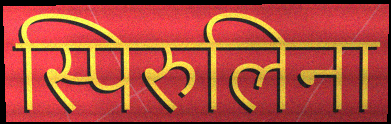
स्पिरुलिना